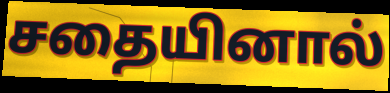
சதையினால்